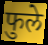
फुले